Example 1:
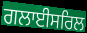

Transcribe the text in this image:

ਗਲਾਈਸਰਿਲ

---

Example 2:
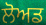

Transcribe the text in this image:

ਲੋਅਡ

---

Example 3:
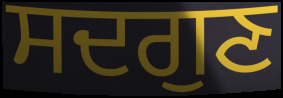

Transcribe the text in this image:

ਸਦਗੁਣ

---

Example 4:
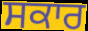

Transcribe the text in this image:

ਸਕਾਰ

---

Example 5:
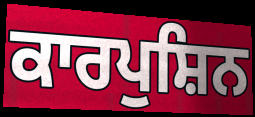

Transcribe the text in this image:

ਕਾਰਪੁਸ਼ਿਨ